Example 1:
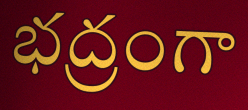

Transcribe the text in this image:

భద్రంగా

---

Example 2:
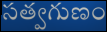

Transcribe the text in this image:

సత్వగుణం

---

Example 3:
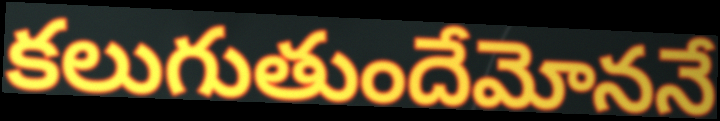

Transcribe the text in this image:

కలుగుతుందేమోననే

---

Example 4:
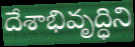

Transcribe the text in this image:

దేశాభివృద్ధిని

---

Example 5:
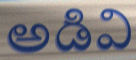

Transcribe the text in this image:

అడివి